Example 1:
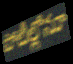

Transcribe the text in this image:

పోటీల్లోనూ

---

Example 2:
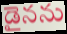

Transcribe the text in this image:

డైనను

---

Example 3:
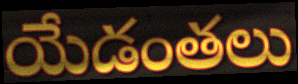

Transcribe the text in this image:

యేడంతలు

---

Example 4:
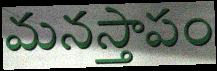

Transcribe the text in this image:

మనస్తాపం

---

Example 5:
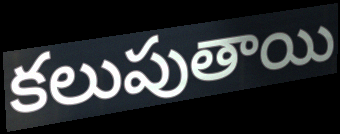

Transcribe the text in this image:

కలుపుతాయి